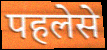
पहलेसे